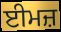
ਈਮਜ਼